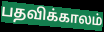
பதவிக்காலம்